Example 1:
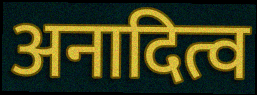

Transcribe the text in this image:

अनादित्व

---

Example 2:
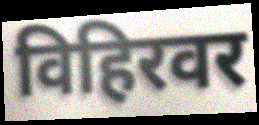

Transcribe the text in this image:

विहिरवर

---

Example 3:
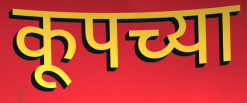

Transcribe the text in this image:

कूपच्या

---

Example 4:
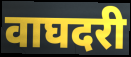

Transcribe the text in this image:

वाघदरी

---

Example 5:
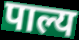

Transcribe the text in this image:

पाल्य